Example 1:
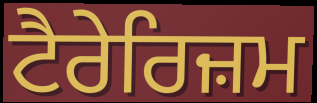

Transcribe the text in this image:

ਟੈਰੇਰਿਜ਼ਮ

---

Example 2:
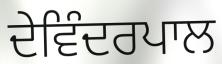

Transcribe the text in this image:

ਦੇਵਿੰਦਰਪਾਲ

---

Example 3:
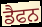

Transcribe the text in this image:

ਡੈਫਨ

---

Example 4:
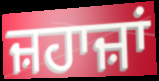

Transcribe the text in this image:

ਜ਼ਹਾਜ਼ਾਂ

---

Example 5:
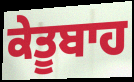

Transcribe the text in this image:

ਕੇਤੂਬਾਹ